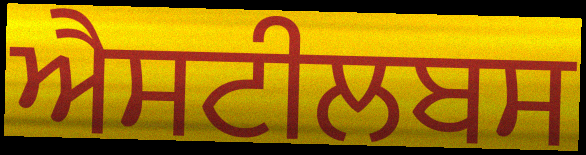
ਐਸਟੀਲਬਸ